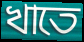
খাতে